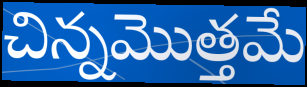
చిన్నమొత్తమే